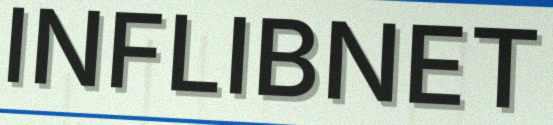
INFLIBNET